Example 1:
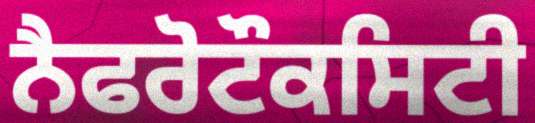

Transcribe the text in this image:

ਨੈਫਰੋਟੌਕਸਿਟੀ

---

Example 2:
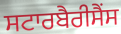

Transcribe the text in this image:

ਸਟਾਰਬੈਰੀਸੈਂਸ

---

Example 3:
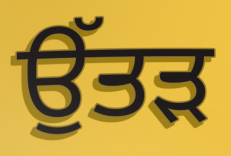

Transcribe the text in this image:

ਉੱਤੜ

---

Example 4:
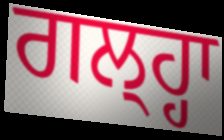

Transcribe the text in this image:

ਗਲ੍ਹ੍ਹਾ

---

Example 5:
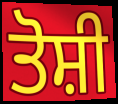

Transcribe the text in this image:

ਤੋਸ਼ੀ